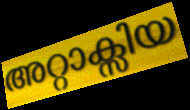
അറ്റാക്സിയ